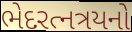
ભેદરત્નત્રયનો